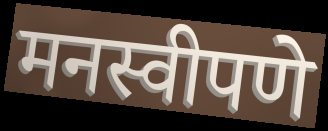
मनस्वीपणे